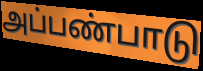
அப்பண்பாடு